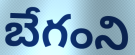
బేగంని